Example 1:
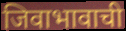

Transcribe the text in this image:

जिवाभावाची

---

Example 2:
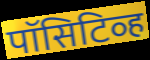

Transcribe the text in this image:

पॉसिटिव्ह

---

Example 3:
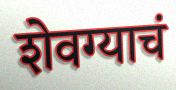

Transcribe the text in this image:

शेवग्याचं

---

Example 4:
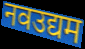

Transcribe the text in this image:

नवउद्यम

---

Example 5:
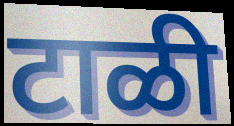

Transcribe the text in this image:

टाळी